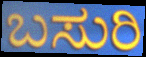
ಬಸುರಿ